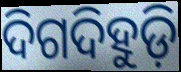
ଦିଗଦିହୁଡ଼ି